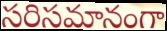
సరిసమానంగా